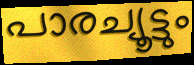
പാരച്യൂട്ടും